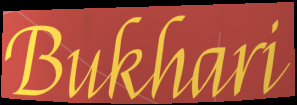
Bukhari